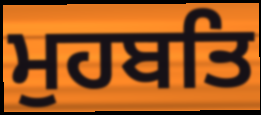
ਮੁਹਬਤਿ